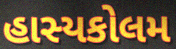
હાસ્યકોલમ